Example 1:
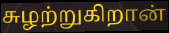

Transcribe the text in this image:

சுழற்றுகிறான்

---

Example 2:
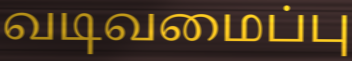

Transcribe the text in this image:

வடிவமைப்பு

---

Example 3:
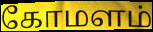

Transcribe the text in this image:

கோமளம்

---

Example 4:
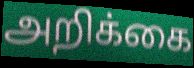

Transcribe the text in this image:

அறிக்கை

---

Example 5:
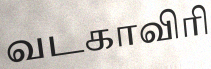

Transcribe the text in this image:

வடகாவிரி